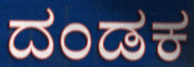
ದಂಡಕ